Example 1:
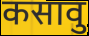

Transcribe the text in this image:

कसावु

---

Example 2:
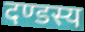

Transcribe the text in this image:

दण्डस्य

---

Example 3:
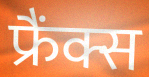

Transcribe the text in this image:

फ्रैंक्स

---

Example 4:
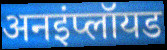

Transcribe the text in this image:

अनइंप्लॉयड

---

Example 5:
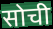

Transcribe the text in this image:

सोची